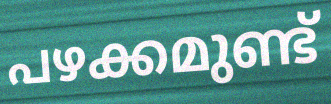
പഴക്കമുണ്ട്